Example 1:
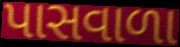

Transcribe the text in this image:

પાસવાળા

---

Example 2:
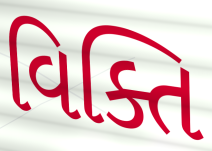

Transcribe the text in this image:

વિક્તિ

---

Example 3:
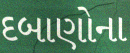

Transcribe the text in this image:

દબાણોના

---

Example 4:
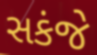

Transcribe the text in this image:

સકંજે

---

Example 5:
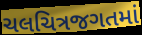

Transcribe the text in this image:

ચલચિત્રજગતમાં